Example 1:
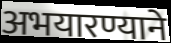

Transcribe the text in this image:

अभयारण्याने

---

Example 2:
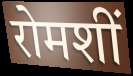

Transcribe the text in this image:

रोमशीं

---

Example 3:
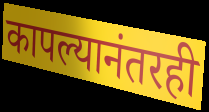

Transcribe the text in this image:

कापल्यानंतरही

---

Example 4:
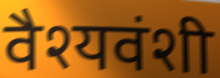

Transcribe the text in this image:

वैश्यवंशी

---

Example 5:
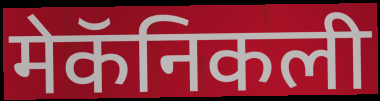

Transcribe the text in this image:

मेकॅनिकली